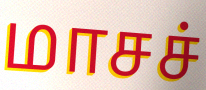
மாசச்